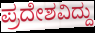
ಪ್ರದೇಶವಿದ್ದು